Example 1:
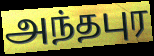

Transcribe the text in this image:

அந்தபுர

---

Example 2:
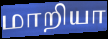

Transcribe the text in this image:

மாறியா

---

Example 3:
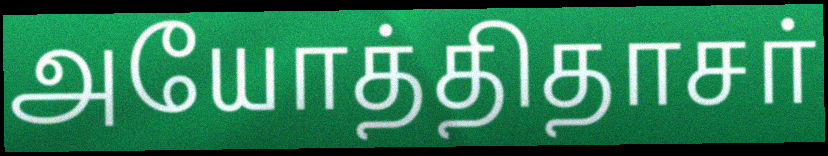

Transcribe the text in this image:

அயோத்திதாசர்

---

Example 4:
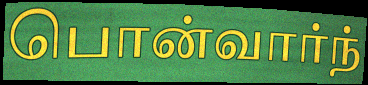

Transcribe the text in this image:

பொன்வார்ந்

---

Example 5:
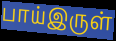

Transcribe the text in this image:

பாய்இருள்